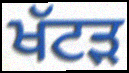
ਖੱਟੜ